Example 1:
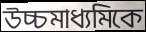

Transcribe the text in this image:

উচ্চমাধ্যমিকে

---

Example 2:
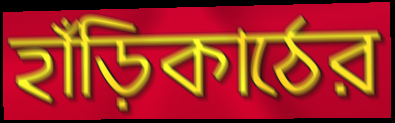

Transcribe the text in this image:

হাঁড়িকাঠের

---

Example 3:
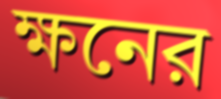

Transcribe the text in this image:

ক্ষনের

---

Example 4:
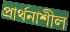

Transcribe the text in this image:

প্রার্থনাশীল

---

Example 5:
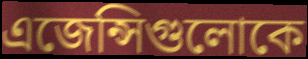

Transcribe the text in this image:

এজেন্সিগুলোকে